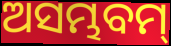
ଅସମ୍ଭବମ୍